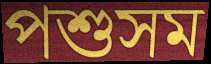
পশুসম